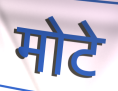
मोटे